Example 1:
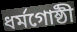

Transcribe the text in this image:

ধৰ্মগোষ্ঠী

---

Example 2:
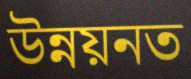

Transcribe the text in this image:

উন্নয়নত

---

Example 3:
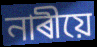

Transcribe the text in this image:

নাৰীয়ে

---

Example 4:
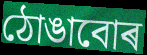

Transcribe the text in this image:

ঠোঙাবোৰ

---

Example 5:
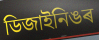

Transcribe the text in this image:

ডিজাইনিঙৰ